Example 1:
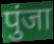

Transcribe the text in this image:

पुंजा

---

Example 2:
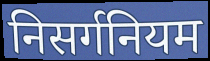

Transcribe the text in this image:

निसर्गनियम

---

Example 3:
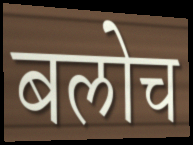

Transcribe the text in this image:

बलोच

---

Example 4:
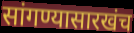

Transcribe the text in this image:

सांगण्यासारखंच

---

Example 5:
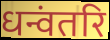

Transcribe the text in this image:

धन्वंतरि